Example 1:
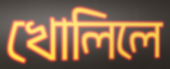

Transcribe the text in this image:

খোলিলে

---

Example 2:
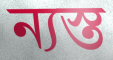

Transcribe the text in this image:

ন্যস্ত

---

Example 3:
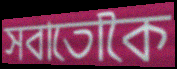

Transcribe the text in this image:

সবাতোকৈ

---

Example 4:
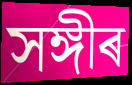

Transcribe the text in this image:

সঙ্গীৰ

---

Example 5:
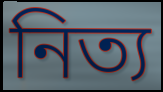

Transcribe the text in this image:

নিত্য